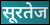
सूरतेज